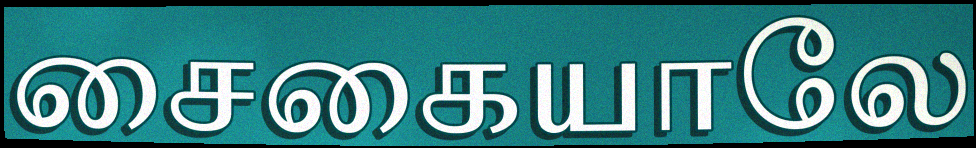
சைகையாலே